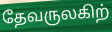
தேவருலகிற்